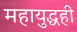
महायुद्धही